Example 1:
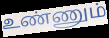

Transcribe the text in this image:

உண்ணும்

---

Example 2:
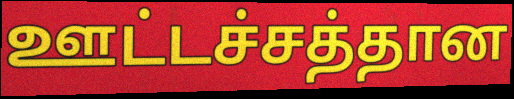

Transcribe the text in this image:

ஊட்டச்சத்தான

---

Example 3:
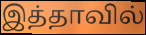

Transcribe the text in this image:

இத்தாவில்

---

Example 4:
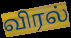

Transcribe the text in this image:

விரல்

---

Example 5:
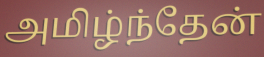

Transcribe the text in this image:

அமிழ்ந்தேன்